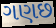
ગણછ